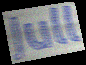
Jull